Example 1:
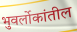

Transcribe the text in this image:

भुवर्लोकांतील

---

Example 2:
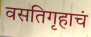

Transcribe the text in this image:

वसतिगृहाचं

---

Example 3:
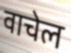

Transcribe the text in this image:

वाचेल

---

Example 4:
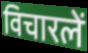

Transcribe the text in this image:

विचारलें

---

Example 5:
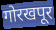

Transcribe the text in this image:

गोरखपूर